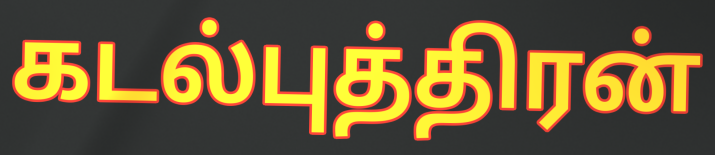
கடல்புத்திரன்